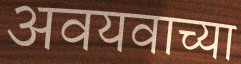
अवयवाच्या